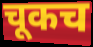
चूकच